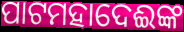
ପାଟମହାଦେଈଙ୍କ